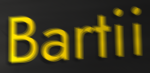
Bartii